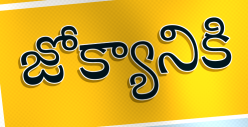
జోక్యానికి